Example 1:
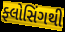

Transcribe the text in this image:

ફ્લોસિંગથી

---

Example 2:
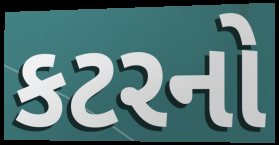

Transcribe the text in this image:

કટરનો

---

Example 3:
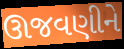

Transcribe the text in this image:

ઊજવણીને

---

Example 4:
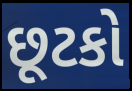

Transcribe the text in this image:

છૂટકો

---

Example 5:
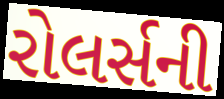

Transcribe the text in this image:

રોલર્સની